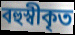
বহুস্বীকৃত